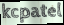
kcpatel